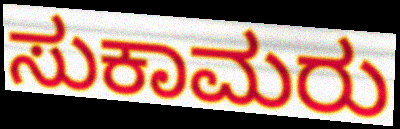
ಸುಕಾಮರು